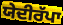
ਯੇਦੀਰੱਪਾ